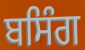
ਬਸਿੰਗ